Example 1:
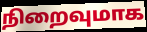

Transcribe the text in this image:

நிறைவுமாக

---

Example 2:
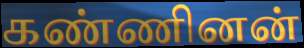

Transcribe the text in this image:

கண்ணினன்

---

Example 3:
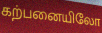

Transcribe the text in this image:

கற்பனையிலோ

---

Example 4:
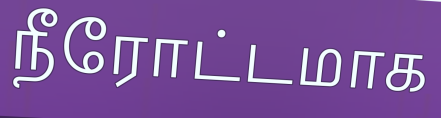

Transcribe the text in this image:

நீரோட்டமாக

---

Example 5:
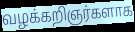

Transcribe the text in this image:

வழக்கறிஞர்களாக